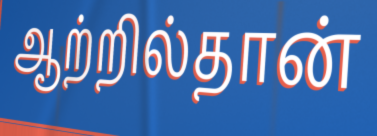
ஆற்றில்தான்